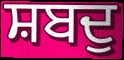
ਸ਼ਬਦੁ